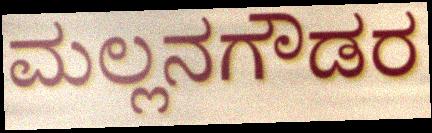
ಮಲ್ಲನಗೌಡರ